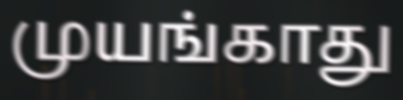
முயங்காது